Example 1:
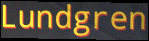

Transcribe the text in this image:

Lundgren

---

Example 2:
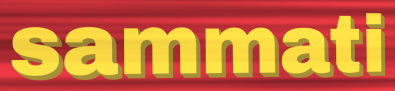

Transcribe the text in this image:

sammati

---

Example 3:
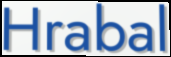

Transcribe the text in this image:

Hrabal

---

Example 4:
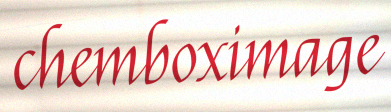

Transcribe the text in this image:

chemboximage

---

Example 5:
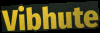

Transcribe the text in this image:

Vibhute